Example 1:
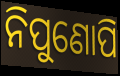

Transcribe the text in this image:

ନିପୁଣୋପି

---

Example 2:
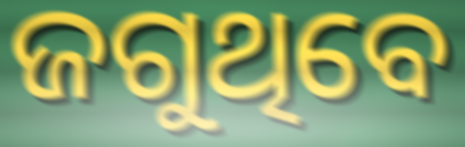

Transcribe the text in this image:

ଜଗୁଥିବେ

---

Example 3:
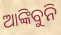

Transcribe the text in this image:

ଆଙ୍କିବୁନି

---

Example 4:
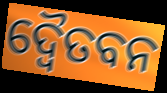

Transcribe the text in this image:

ଦ୍ବୈତବନ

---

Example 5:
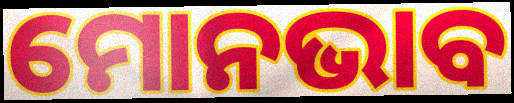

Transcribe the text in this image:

ମୋନଭାବ